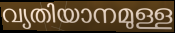
വ്യതിയാനമുള്ള